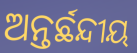
ଅନ୍ତର୍ଛନ୍ଦୀୟ